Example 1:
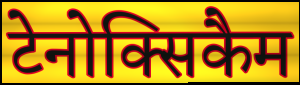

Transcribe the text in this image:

टेनोक्सिकैम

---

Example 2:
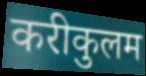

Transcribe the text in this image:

करीकुलम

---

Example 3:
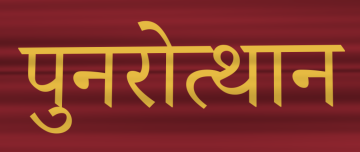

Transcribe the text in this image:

पुनरोत्थान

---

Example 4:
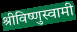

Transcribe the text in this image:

श्रीविष्णुस्वामी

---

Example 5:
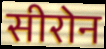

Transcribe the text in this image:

सीरोन